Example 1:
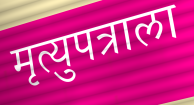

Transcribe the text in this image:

मृत्युपत्राला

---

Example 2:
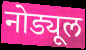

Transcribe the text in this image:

नोड्यूल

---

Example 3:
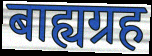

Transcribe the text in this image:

बाह्यग्रह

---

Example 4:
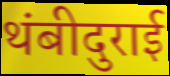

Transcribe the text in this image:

थंबीदुराई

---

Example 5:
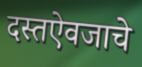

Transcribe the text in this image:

दस्तऐवजाचे